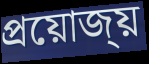
প্ৰয়োজ্য়